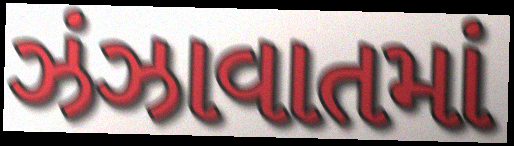
ઝંઝાવાતમાં